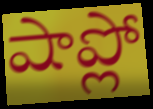
షాప్లో